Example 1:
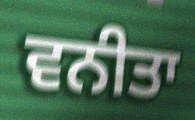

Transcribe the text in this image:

ਵਨੀਤਾ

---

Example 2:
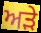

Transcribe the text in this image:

ਅੜੇ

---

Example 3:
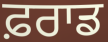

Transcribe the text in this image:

ਫ਼ਰਾਡ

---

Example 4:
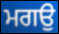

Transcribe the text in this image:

ਮਗਉ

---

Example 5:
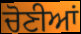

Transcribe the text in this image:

ਚੋਣੀਆਂ